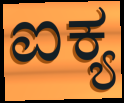
ಐಕ್ಯ